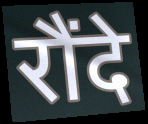
रौंदे